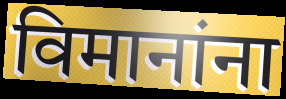
विमानांना